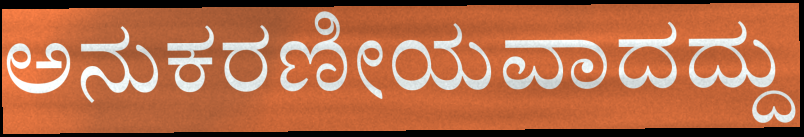
ಅನುಕರಣೀಯವಾದದ್ದು